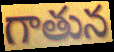
గాతున